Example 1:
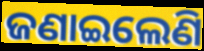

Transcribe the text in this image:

ଜଣାଇଲେଣି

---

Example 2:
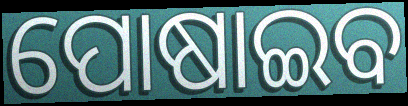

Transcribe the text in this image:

ପୋଷାଇବ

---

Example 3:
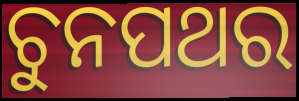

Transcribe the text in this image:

ଚୁନପଥର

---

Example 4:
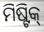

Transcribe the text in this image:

ମିଷ୍ଟିକ୍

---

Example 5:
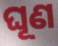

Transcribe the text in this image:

ଘୂଣ